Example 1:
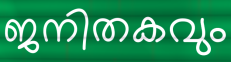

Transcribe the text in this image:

ജനിതകവും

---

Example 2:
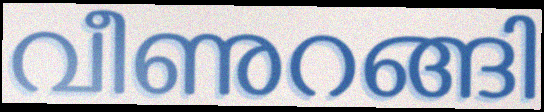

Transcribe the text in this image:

വീണുറങ്ങി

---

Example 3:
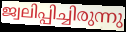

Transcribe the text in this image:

ജ്വലിപ്പിച്ചിരുന്നു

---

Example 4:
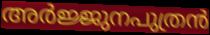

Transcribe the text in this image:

അർജ്ജുനപുത്രൻ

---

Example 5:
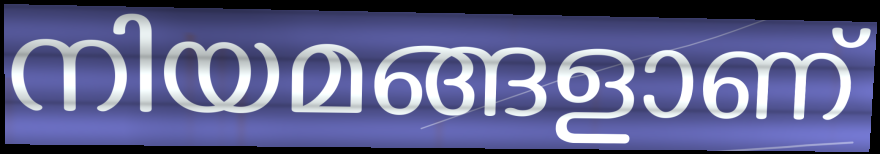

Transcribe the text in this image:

നിയമങ്ങളാണ്